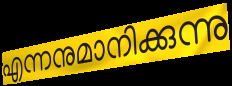
എന്നനുമാനിക്കുന്നു